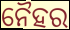
ନୈହର